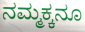
ನಮ್ಮಕ್ಕನೂ